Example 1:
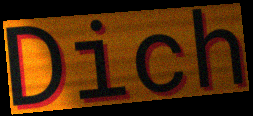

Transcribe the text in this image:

Dich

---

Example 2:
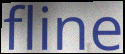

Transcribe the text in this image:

fline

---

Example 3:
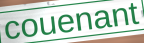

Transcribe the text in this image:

couenant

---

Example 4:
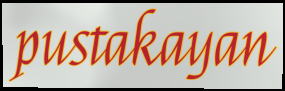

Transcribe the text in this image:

pustakayan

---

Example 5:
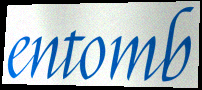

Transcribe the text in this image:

entomb